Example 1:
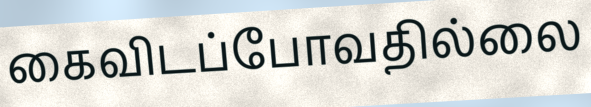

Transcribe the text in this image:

கைவிடப்போவதில்லை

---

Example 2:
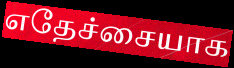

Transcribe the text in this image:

எதேச்சையாக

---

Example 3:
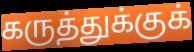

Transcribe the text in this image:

கருத்துக்குக்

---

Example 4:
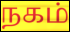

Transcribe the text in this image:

நகம்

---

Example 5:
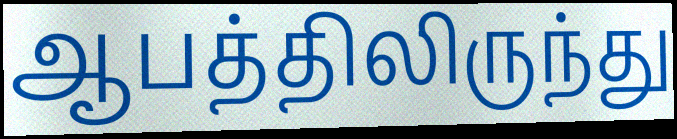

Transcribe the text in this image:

ஆபத்திலிருந்து